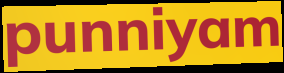
punniyam